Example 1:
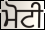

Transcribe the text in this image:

ਮੋਟੀ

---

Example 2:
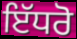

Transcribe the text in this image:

ਇੱਧਰੋ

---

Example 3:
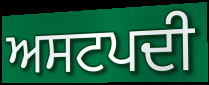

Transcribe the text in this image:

ਅਸਟਪਦੀ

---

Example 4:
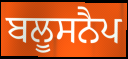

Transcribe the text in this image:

ਬਲੂਸਨੈਪ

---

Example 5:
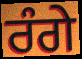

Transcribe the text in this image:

ਰੰਗੇ